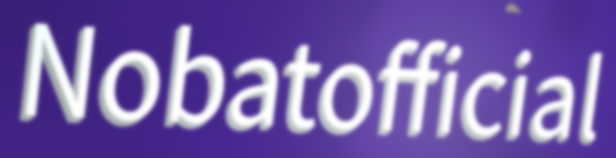
Nobatofficial